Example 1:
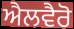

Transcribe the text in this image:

ਐਲਵੈਰੋ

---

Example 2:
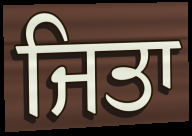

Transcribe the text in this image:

ਜਿਤਾ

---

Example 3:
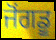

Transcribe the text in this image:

ਜੋਂਗਡੂ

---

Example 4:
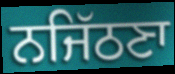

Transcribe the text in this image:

ਨਜਿੱਠਣਾ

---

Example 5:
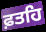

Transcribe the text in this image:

ਫ਼ਤਹਿ